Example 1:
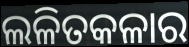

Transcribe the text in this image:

ଲଳିତକଳାର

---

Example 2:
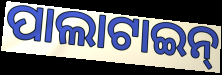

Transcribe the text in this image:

ପାଲାଟାଇନ୍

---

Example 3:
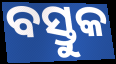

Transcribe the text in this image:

ବସ୍ତୁକ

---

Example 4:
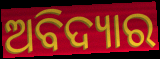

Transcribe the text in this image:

ଅବିଦ୍ୟାର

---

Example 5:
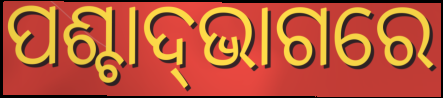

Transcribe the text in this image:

ପଶ୍ଚାଦ୍‍ଭାଗରେ